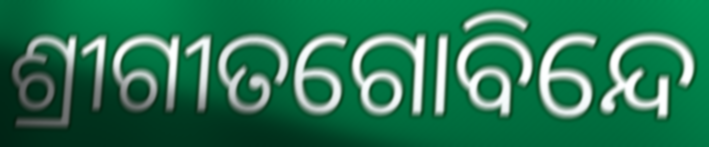
ଶ୍ରୀଗୀତଗୋବିନ୍ଦେ